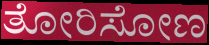
ತೋರಿಸೋಣ